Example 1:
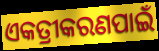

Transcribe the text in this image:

ଏକତ୍ରୀକରଣପାଇଁ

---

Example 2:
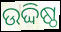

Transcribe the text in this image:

ଉଦ୍ଦିଷ୍ଠ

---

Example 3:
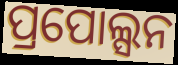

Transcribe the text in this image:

ପ୍ରପୋଲ୍ସନ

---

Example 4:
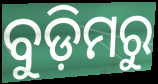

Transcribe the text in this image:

ବୁଡ଼ିମରୁ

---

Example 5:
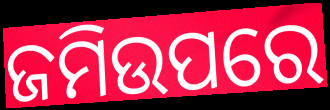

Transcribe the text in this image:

ଜମିଉପରେ